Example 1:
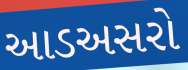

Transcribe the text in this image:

આડઅસરો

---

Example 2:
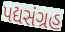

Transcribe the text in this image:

પદ્યસંગ્રહ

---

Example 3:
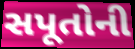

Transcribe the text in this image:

સપૂતોની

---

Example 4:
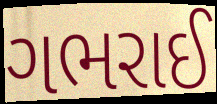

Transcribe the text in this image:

ગભરાઈ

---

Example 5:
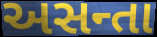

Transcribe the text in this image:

અસન્તા